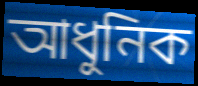
আধুনিক